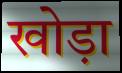
खोड़ा